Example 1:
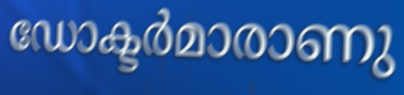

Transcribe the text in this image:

ഡോക്ടർമാരാണു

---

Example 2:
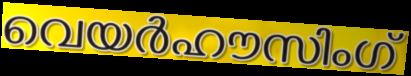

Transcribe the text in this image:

വെയർഹൗസിംഗ്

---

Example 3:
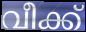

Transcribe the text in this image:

വീക്ക്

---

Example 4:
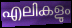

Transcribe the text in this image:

എലികളും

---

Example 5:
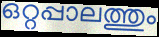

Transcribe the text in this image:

ഒറ്റപ്പാലത്തും